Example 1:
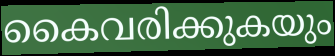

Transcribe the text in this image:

കൈവരിക്കുകയും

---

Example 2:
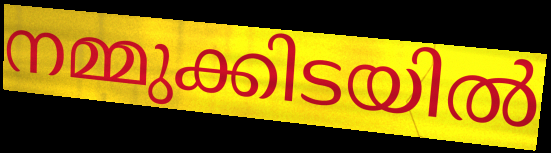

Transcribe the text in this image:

നമ്മുക്കിടയിൽ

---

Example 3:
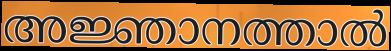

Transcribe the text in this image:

അജ്ഞാനത്താൽ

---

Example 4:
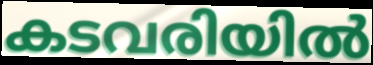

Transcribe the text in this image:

കടവരിയിൽ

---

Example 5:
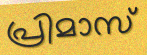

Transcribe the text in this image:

പ്രിമാസ്